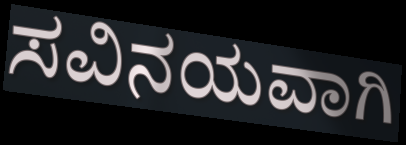
ಸವಿನಯವಾಗಿ